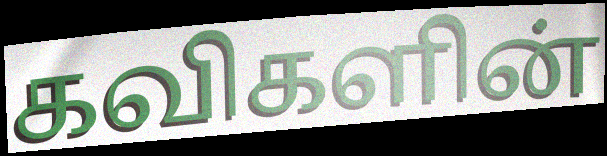
கவிகளின்